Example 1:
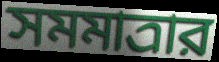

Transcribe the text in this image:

সমমাত্রার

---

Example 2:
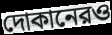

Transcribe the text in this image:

দোকানেরও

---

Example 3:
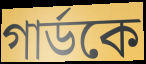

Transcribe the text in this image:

গার্ডকে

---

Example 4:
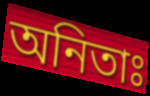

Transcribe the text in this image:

অনিতাঃ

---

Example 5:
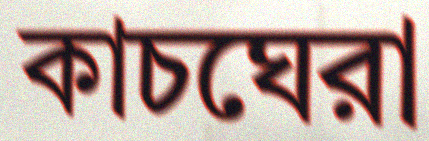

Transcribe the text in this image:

কাচঘেরা